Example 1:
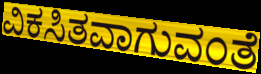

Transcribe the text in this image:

ವಿಕಸಿತವಾಗುವಂತೆ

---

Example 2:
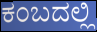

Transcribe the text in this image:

ಕಂಬದಲ್ಲಿ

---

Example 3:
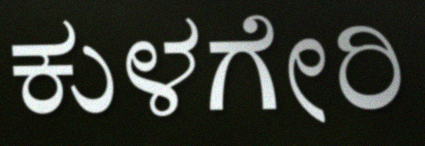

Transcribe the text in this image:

ಕುಳಗೇರಿ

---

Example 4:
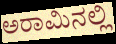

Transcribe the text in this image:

ಅರಾಮಿನಲ್ಲಿ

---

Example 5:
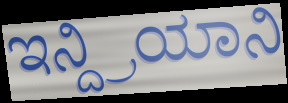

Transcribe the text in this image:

ಇನ್ದ್ರಿಯಾನಿ